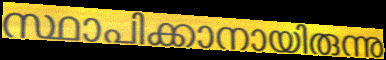
സ്ഥാപിക്കാനായിരുന്നു